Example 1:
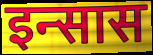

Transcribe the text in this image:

इन्सास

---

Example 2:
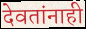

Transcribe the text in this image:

देवतांनाही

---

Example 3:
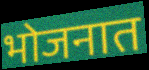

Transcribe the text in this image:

भोजनात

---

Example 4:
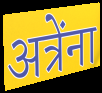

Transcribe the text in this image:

अत्रेंना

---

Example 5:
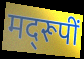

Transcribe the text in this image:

मद्‌रूपीं